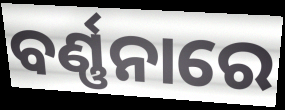
ବର୍ଣ୍ଣନାରେ